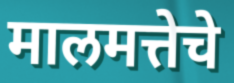
मालमत्तेचे